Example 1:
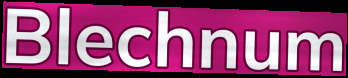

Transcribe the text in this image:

Blechnum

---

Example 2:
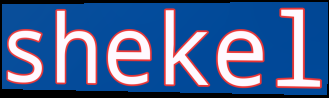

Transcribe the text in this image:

shekel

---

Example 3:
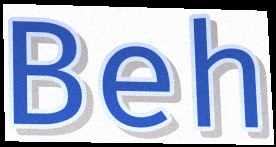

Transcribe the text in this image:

Beh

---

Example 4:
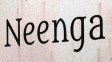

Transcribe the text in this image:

Neenga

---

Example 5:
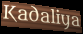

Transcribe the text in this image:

Kadaliya